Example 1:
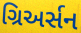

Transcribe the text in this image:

ગ્રિઅર્સન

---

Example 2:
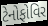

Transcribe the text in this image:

ટેનોફોવિર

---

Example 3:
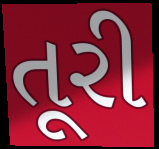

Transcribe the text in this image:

તૂરી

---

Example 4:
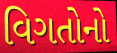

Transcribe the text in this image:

વિગતોનો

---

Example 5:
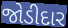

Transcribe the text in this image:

જોડીદાર